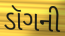
ડૉગની